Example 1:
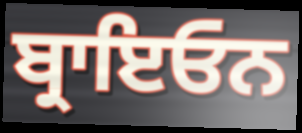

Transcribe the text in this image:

ਬ੍ਰਾਇਓਨ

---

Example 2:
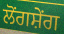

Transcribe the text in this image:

ਲੋਂਗਸ਼ੇਂਗ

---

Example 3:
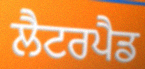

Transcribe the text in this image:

ਲੈਟਰਪੈਡ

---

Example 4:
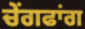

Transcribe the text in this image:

ਚੇਂਗਫਾਂਗ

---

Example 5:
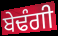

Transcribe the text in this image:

ਬੇਢੰਗੀ